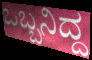
ಒಬ್ಬನಿದ್ದ